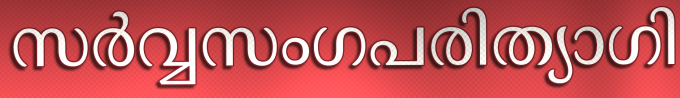
സർവ്വസംഗപരിത്യാഗി